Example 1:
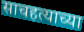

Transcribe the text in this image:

साचहत्याच्या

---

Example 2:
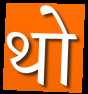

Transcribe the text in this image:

थो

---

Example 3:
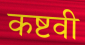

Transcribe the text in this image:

कष्टवी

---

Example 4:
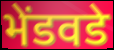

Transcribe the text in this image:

भेंडवडे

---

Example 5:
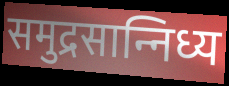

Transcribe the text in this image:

समुद्रसान्निध्य